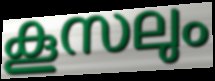
കൂസലും